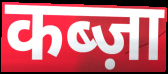
कब्ज़ा